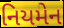
નિયમેન